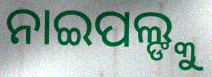
ନାଇପଲ୍ଙ୍କୁ